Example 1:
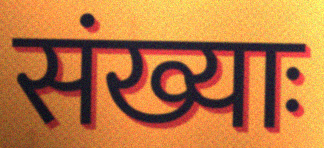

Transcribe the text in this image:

संख्याः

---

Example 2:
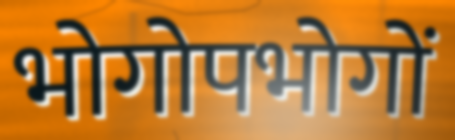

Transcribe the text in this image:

भोगोपभोगों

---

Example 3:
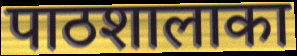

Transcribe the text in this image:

पाठशालाका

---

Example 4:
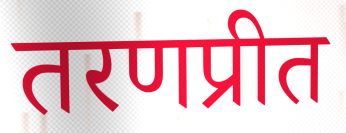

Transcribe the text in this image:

तरणप्रीत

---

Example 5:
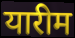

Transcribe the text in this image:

यारीम